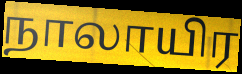
நாலாயிர